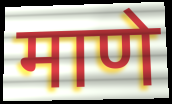
माणे